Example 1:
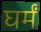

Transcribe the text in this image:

घर्मं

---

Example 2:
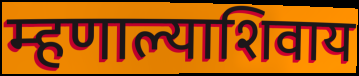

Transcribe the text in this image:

म्हणाल्याशिवाय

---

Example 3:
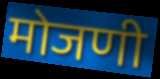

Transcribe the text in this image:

मोजणी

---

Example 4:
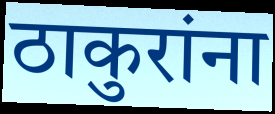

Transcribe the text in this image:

ठाकुरांना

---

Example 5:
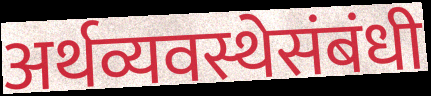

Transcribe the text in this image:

अर्थव्यवस्थेसंबंधी